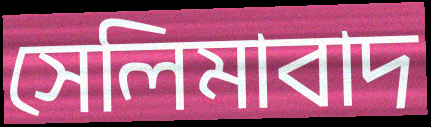
সেলিমাবাদ